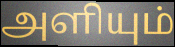
அளியும்